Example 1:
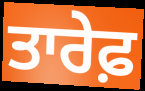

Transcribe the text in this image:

ਤਾਰੇਫ਼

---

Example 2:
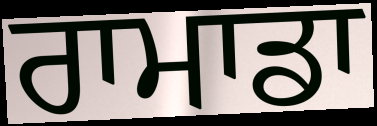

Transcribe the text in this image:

ਰਾਮਾਡਾ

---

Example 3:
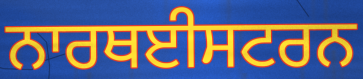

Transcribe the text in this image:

ਨਾਰਥਈਸਟਰਨ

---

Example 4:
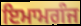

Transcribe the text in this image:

ਇਮਾਮਗੰਜ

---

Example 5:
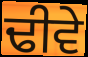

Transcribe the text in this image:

ਢੀਵੇ